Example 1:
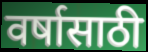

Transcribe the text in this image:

वर्षासाठी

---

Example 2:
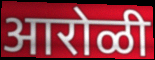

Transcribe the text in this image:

आरोळी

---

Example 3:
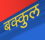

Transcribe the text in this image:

बक्कुल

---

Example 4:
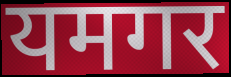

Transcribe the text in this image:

यमगर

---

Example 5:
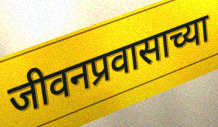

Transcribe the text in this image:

जीवनप्रवासाच्या